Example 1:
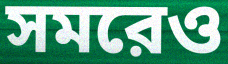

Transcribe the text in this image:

সমরেও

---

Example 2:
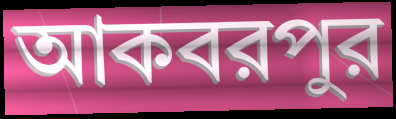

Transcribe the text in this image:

আকবরপুর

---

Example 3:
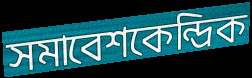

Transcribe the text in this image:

সমাবেশকেন্দ্রিক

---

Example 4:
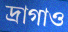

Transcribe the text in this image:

দ্রাগাও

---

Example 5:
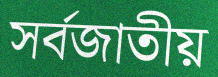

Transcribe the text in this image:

সর্বজাতীয়